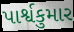
પાર્શ્વકુમાર